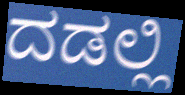
ದಡಲ್ಲಿ